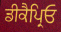
ਡੀਕੈਪ੍ਰਿਓ